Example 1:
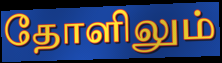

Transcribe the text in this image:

தோளிலும்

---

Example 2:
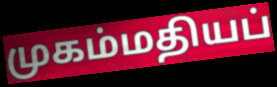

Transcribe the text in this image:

முகம்மதியப்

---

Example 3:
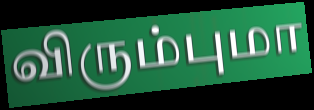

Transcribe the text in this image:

விரும்புமா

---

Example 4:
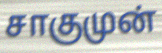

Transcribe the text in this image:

சாகுமுன்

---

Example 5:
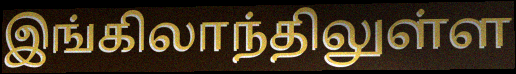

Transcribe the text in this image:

இங்கிலாந்திலுள்ள